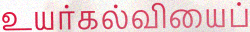
உயர்கல்வியைப்